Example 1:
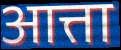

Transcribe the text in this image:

आत्ता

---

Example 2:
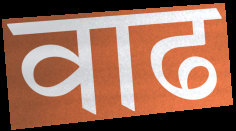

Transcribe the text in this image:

वाढ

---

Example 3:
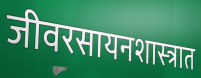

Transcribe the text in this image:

जीवरसायनशास्त्रात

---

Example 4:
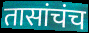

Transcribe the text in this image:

तासांचंच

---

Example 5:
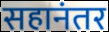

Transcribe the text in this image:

सहानंतर